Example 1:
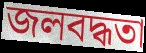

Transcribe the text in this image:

জলবদ্ধতা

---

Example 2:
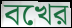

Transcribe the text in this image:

বখের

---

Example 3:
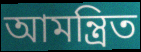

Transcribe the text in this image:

আমন্ত্রিত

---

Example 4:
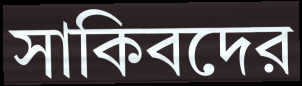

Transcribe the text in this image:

সাকিবদের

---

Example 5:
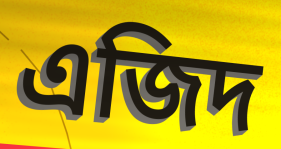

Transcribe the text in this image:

এজিদ